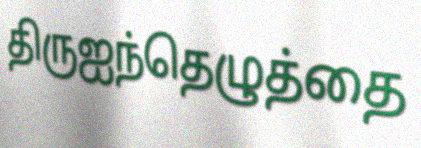
திருஐந்தெழுத்தை